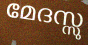
മേദസ്സു